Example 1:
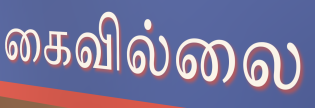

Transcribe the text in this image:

கைவில்லை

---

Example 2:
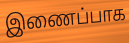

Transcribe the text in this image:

இணைப்பாக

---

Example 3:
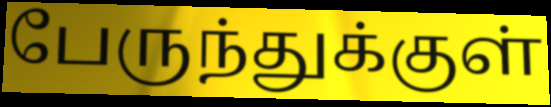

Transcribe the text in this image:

பேருந்துக்குள்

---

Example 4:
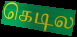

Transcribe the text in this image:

கெடில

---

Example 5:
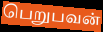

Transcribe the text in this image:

பெறுபவன்